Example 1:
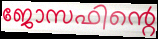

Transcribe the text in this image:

ജോസഫിന്റെ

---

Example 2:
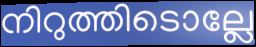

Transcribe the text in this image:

നിറുത്തിടൊല്ലേ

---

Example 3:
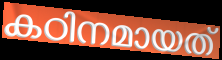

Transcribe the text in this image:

കഠിനമായത്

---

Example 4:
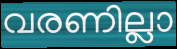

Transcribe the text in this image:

വരണില്ലാ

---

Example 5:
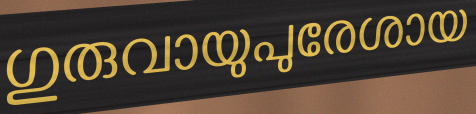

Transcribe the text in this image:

ഗുരുവായുപുരേശായ